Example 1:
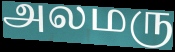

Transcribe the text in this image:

அலமரு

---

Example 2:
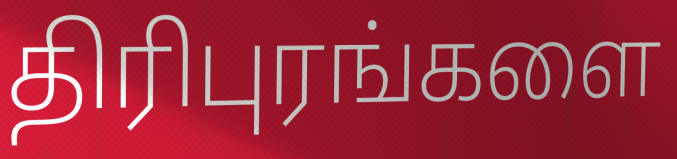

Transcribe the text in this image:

திரிபுரங்களை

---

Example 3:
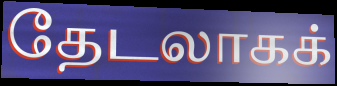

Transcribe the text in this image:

தேடலாகக்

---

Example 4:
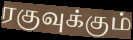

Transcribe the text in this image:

ரகுவுக்கும்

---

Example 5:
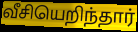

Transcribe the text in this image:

வீசியெறிந்தார்